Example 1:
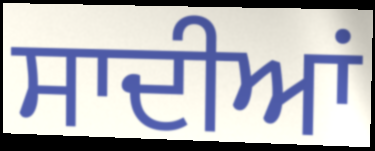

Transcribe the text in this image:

ਸਾਦੀਆਂ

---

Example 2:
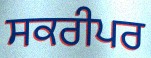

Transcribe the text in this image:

ਸਕਰੀਪਰ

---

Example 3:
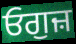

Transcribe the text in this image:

ਓਗੁਜ਼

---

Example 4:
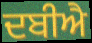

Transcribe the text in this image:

ਦਬੀਐ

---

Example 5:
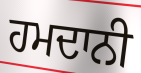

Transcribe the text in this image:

ਹਮਦਾਨੀ